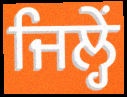
ਜਿਲ੍ਹੇਂ